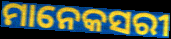
ମାନେକସରୀ